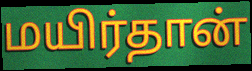
மயிர்தான்